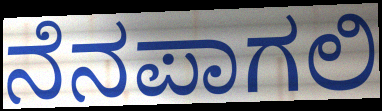
ನೆನಪಾಗಲಿ